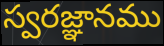
స్వరజ్ఞానము